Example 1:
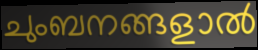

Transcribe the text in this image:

ചുംബനങ്ങളാൽ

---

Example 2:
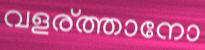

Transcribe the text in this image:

വളര്ത്താനോ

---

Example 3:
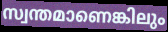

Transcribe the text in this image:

സ്വന്തമാണെങ്കിലും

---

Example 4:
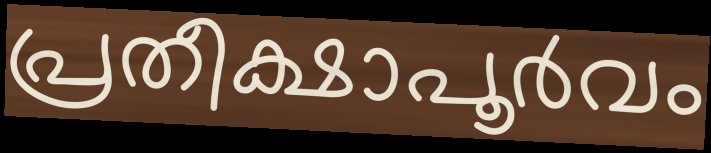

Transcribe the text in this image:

പ്രതീക്ഷാപൂർവം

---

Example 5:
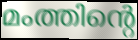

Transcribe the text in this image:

മംത്തിന്റെ